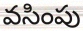
వసింపు